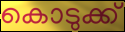
കൊടുക്ക്